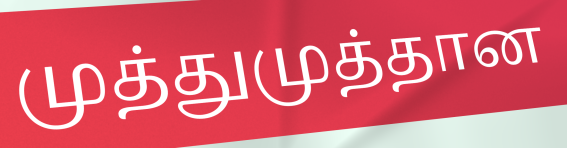
முத்துமுத்தான